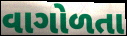
વાગોળતા